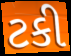
ટકી